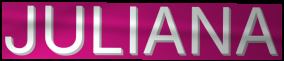
JULIANA